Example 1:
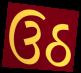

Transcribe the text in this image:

ઉઠ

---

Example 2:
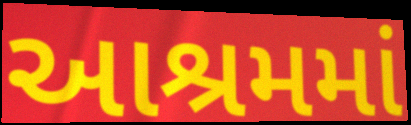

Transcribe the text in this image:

આશ્રમમાં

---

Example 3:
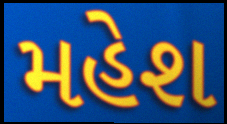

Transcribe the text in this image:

મહેશ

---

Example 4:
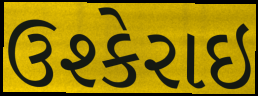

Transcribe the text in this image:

ઉશ્કેરાઇ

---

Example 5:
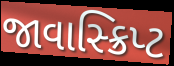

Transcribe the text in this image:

જાવાસ્ક્રિપ્ટ